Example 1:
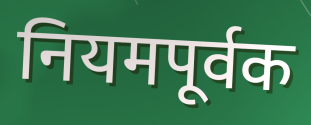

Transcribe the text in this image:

नियमपूर्वक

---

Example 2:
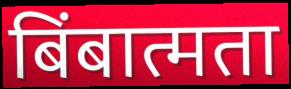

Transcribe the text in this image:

बिंबात्मता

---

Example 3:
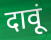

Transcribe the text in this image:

दावूं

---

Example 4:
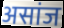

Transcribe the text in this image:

असांज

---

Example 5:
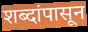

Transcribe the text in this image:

शब्दांपासून